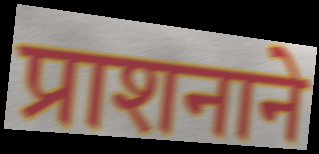
प्राशनाने